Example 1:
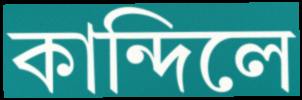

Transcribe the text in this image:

কান্দিলে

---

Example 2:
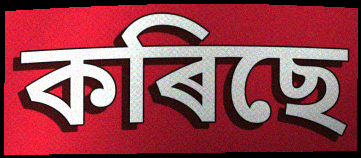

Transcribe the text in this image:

কৰিছে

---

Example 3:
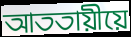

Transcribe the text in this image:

আততায়ীয়ে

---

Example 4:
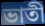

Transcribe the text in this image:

ভাতী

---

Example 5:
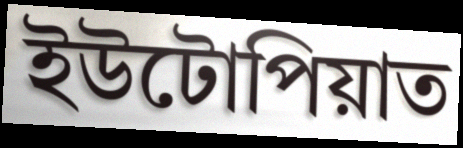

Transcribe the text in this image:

ইউটোপিয়াত